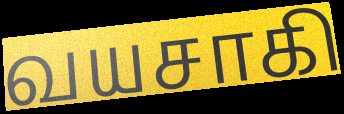
வயசாகி